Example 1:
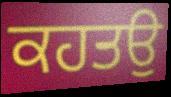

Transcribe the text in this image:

ਕਹਤਉ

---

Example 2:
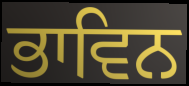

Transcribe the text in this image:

ਭਾਵਿਨ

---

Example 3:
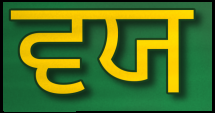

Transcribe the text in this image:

ਵਯ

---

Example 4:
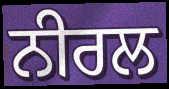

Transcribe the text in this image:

ਨੀਰਲ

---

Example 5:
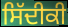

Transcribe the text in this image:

ਸਿੱਦੀਕੀ